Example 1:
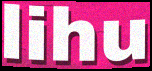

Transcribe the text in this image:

lihu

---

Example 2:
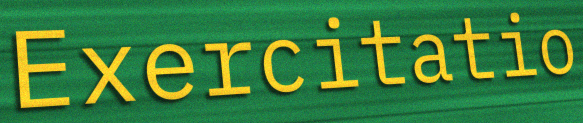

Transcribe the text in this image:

Exercitatio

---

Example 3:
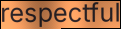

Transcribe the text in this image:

respectful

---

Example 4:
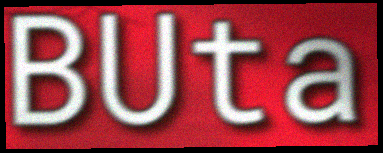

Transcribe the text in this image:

BUta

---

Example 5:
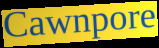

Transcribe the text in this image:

Cawnpore